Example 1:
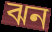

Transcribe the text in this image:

ঝন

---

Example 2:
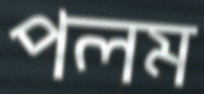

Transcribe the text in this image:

পলম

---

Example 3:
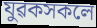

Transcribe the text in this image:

যুৱকসকলে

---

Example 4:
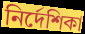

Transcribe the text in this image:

নিৰ্দেশিকা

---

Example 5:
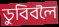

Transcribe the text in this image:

ডুবিবলৈ